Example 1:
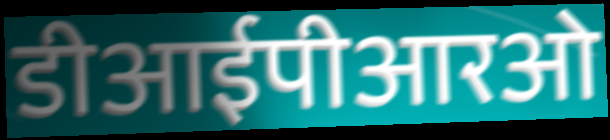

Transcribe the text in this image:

डीआईपीआरओ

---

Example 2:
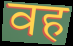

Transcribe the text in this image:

वह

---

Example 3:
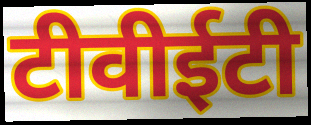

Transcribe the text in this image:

टीवीईटी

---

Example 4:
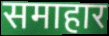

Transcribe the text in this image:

समाहार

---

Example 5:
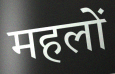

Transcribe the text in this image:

महलों